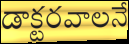
డాక్టరవాలనే